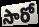
సారో